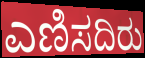
ಎಣಿಸದಿರು